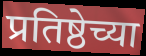
प्रतिष्ठेच्या